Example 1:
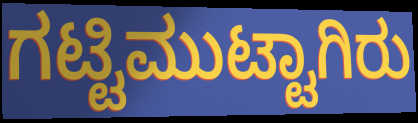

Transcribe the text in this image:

ಗಟ್ಟಿಮುಟ್ಟಾಗಿರು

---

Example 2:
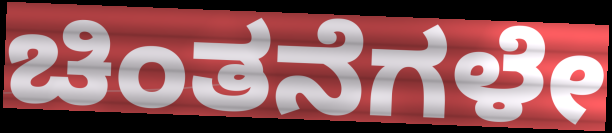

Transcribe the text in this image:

ಚಿಂತನೆಗಳೇ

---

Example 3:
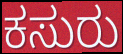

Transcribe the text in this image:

ಕಸುರು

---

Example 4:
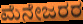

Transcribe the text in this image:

ಮೆನೇಜರರ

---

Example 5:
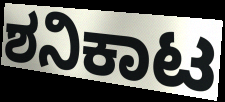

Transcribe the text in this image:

ಶನಿಕಾಟ